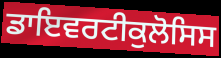
ਡਾਇਵਰਟੀਕੁਲੋਸਿਸ